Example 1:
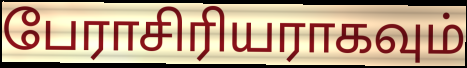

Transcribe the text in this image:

பேராசிரியராகவும்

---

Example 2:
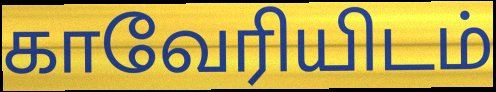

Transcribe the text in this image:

காவேரியிடம்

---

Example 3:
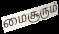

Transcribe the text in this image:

மைசூரும்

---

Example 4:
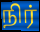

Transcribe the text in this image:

நிர்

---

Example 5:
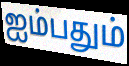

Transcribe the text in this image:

ஐம்பதும்